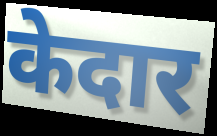
केदार